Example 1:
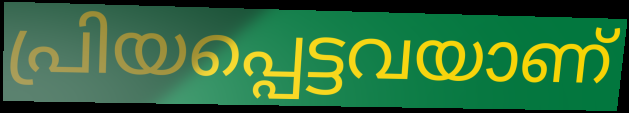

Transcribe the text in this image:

പ്രിയപ്പെട്ടവയാണ്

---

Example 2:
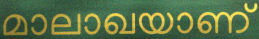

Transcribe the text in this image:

മാലാഖയാണ്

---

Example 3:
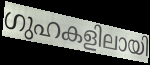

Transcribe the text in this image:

ഗുഹകളിലായി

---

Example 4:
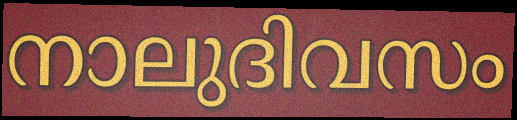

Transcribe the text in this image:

നാലുദിവസം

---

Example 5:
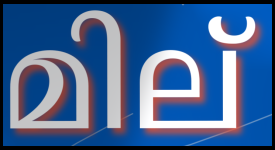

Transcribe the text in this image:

മില്